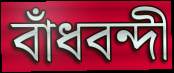
বাঁধবন্দী